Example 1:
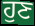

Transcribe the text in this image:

ਹੁਣ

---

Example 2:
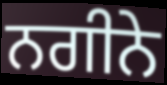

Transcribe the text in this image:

ਨਗੀਨੇ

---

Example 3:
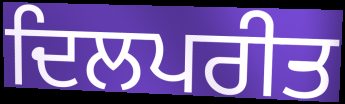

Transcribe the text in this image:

ਦਿਲਪਰੀਤ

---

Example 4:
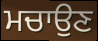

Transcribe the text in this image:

ਮਚਾਉਣ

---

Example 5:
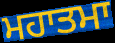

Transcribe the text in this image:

ਮਹਾਤਮਾ